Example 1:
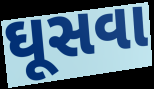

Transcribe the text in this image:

ઘૂસવા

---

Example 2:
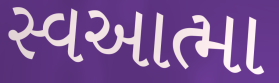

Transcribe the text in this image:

સ્વઆત્મા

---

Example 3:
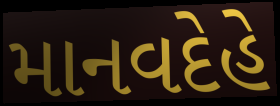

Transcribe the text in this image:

માનવદેહે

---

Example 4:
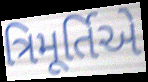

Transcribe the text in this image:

ત્રિમૂર્તિએ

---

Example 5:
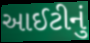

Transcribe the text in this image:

આઈટીનું